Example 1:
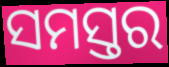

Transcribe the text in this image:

ସମସ୍ତର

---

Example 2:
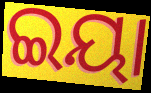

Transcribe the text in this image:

ଇୟା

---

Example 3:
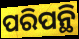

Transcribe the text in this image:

ପରିପନ୍ଥି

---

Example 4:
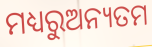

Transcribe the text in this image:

ମଧ୍ୟରୁଅନ୍ୟତମ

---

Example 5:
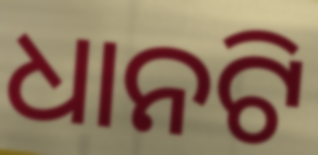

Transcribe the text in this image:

ଧାନଟି